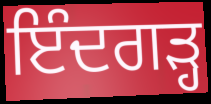
ਇੰਦਗੜ੍ਹ